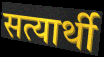
सत्यार्थी